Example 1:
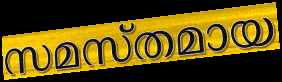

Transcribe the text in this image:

സമസ്തമായ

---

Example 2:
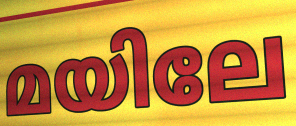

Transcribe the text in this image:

മയിലേ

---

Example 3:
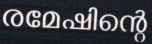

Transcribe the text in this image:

രമേഷിന്റെ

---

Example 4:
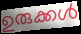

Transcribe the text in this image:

ഉരുക്കൾ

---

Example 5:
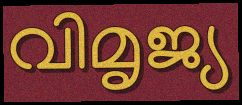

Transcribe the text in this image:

വിമൃജ്യ